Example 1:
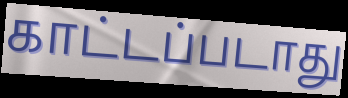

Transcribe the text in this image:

காட்டப்படாது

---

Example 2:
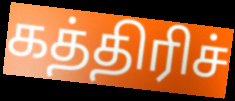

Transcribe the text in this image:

கத்திரிச்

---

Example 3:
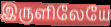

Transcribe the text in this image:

இருளிலேயே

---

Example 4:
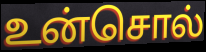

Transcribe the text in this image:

உன்சொல்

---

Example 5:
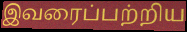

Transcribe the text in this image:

இவரைப்பற்றிய